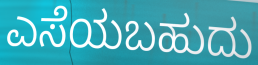
ಎಸೆಯಬಹುದು